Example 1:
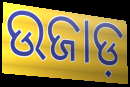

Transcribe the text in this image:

ଉଜାଡ଼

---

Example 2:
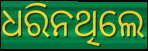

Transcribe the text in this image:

ଧରିନଥିଲେ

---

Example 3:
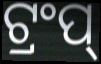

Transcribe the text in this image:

ଟ୍ରଂପ୍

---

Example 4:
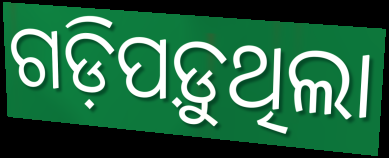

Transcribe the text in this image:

ଗଡ଼ିପଡ଼ୁଥିଲା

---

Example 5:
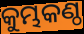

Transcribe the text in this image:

କୁମ୍ଭକଣ୍ଠ